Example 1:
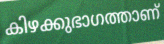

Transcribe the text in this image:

കിഴക്കുഭാഗത്താണ്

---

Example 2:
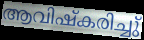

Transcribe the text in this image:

ആവിഷ്കരിച്ചു്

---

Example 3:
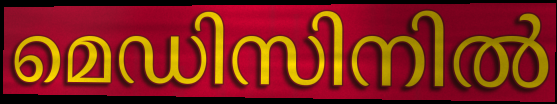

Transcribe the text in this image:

മെഡിസിനിൽ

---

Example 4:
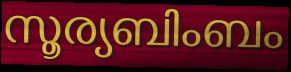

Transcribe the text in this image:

സൂര്യബിംബം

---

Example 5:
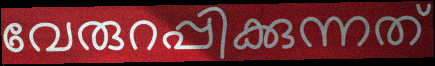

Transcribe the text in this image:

വേരുറപ്പിക്കുന്നത്